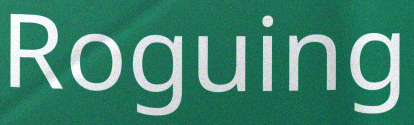
Roguing